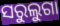
ସରୁଲୁଗା